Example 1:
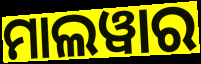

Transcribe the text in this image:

ମାଲୱାର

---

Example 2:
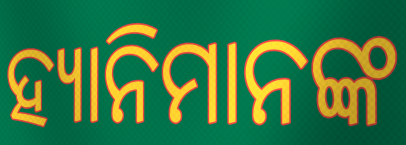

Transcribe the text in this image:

ହ୍ୟାନିମାନଙ୍କ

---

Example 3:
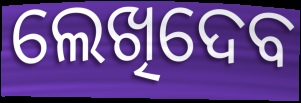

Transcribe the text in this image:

ଲେଖିଦେବ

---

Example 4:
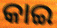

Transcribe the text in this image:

କାଇ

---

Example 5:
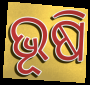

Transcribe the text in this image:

ଭୂଷି